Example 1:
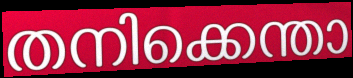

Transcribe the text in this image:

തനിക്കെന്താ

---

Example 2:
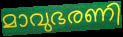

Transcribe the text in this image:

മാവുഭരണി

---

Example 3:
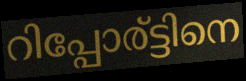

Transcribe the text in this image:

റിപ്പോര്ട്ടിനെ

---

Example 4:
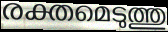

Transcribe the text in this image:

രക്തമെടുത്തു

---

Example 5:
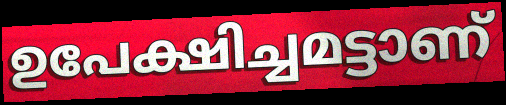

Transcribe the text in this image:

ഉപേക്ഷിച്ചമട്ടാണ്